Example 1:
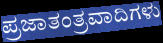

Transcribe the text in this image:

ಪ್ರಜಾತಂತ್ರವಾದಿಗಳು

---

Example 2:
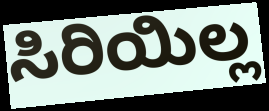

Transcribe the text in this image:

ಸಿರಿಯಿಲ್ಲ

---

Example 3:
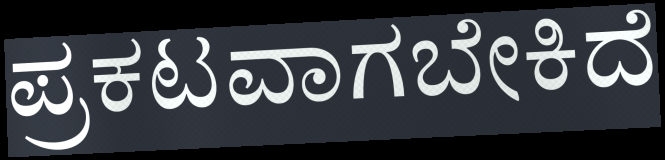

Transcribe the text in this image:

ಪ್ರಕಟವಾಗಬೇಕಿದೆ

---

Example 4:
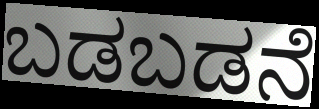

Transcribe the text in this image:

ಬಡಬಡನೆ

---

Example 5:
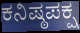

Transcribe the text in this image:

ಕನಿಷ್ಠಪಕ್ಷ